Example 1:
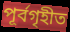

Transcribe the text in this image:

পূর্বগৃহীত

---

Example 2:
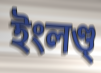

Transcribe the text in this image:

ইংলণ্ড্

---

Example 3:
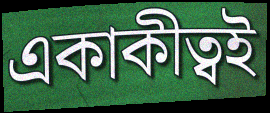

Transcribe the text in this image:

একাকীত্বই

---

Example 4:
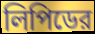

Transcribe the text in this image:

লিপিডের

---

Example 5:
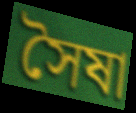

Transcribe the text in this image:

সৈষা